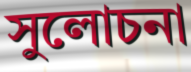
সুলোচনা